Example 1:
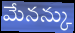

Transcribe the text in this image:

మేనన్కు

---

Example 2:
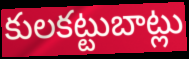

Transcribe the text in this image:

కులకట్టుబాట్లు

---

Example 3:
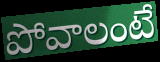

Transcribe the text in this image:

పోవాలంటే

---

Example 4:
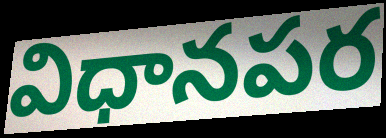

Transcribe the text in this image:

విధానపర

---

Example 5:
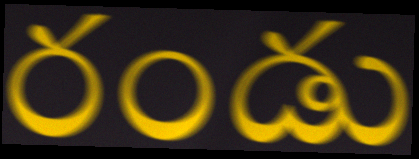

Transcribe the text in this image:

రండు